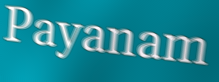
Payanam